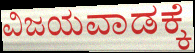
ವಿಜಯವಾಡಕ್ಕೆ